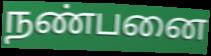
நண்பனை